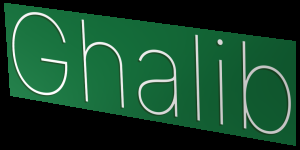
Ghalib